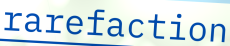
rarefaction